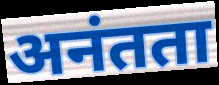
अनंतता